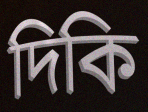
দিকি